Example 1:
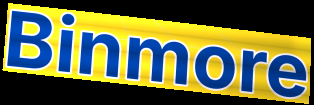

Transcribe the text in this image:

Binmore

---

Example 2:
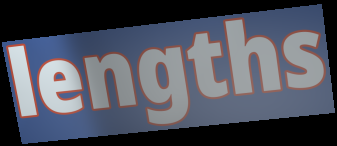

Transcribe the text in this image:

lengths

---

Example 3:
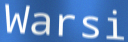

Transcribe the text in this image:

Warsi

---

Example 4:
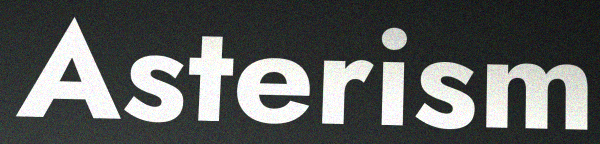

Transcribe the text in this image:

Asterism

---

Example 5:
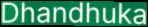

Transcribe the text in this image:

Dhandhuka